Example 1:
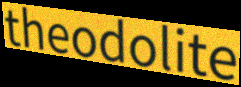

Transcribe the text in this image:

theodolite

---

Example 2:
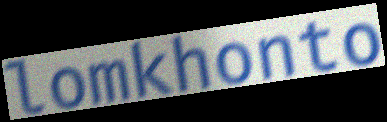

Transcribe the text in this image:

lomkhonto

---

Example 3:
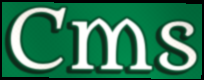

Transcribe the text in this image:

Cms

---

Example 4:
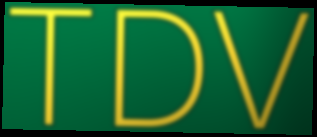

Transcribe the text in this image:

TDV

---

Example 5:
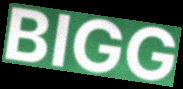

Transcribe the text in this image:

BIGG